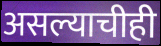
असल्याचीही